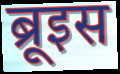
ब्रूइस